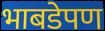
भाबडेपण